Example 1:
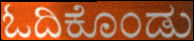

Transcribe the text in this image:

ಓದಿಕೊಂಡು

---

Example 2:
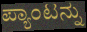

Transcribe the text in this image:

ಪ್ಯಾಂಟನ್ನು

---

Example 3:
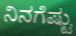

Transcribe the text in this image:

ನಿನಗೆಷ್ಟು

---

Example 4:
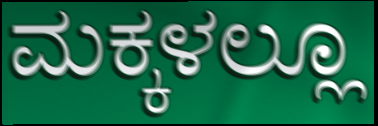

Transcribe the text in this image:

ಮಕ್ಕಳಲ್ಲೂ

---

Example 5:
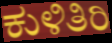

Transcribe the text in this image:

ಕುಳಿತಿರಿ